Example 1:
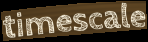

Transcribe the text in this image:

timescale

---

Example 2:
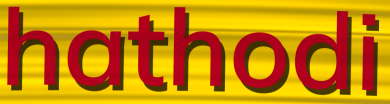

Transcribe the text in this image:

hathodi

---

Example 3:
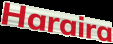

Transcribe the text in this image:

Haraira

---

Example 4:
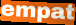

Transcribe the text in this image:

empat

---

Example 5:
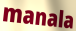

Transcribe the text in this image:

manala